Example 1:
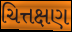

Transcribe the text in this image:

ચિત્તક્ષણ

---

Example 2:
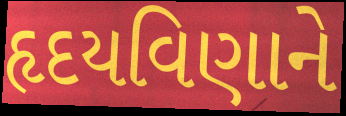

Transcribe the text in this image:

હૃદયવિણાને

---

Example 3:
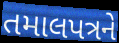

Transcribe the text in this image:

તમાલપત્રને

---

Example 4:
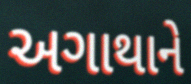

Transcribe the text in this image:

અગાથાને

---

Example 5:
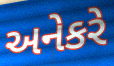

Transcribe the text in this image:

અનેકરે